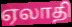
ஏலாதி